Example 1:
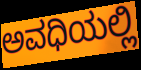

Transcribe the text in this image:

ಅವಧಿಯಲ್ಲಿ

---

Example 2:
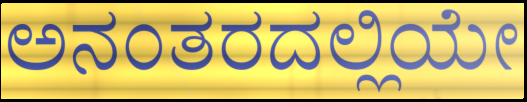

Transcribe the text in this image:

ಅನಂತರದಲ್ಲಿಯೇ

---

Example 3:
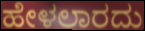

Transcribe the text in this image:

ಹೇಳಲಾರದು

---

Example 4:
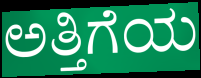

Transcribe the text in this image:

ಅತ್ತಿಗೆಯ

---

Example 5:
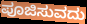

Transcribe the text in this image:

ಪೂಜಿಸುವದು